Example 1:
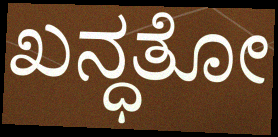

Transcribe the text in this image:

ಖನ್ಧತೋ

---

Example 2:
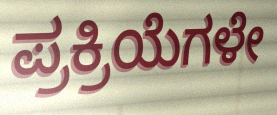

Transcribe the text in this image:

ಪ್ರಕ್ರಿಯೆಗಳೇ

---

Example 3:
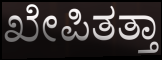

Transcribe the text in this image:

ಖೇಪಿತತ್ತಾ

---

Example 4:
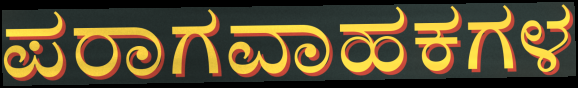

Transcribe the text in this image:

ಪರಾಗವಾಹಕಗಳ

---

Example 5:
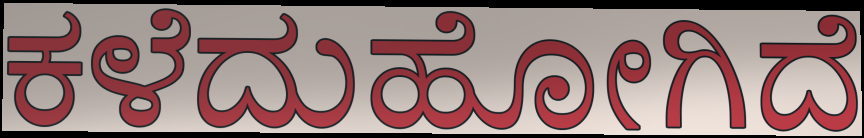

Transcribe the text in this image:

ಕಳೆದುಹೋಗಿದೆ